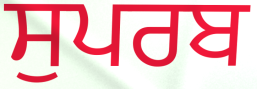
ਸੁਪਰਬ